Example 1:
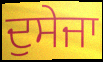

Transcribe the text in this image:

ਦੁਸੇਜਾ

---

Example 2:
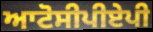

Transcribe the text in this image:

ਆਟੋਸੀਪੀਏਪੀ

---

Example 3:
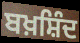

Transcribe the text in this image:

ਬਖ਼ਸ਼ਿੰਦ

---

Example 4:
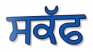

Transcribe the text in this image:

ਸਕੱਫ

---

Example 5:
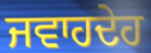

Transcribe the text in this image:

ਜਵਾਹਦੇਹ